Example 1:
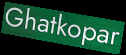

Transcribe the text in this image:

Ghatkopar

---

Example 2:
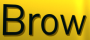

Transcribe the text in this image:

Brow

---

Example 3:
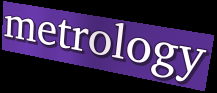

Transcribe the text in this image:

metrology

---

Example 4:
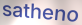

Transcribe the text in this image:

satheno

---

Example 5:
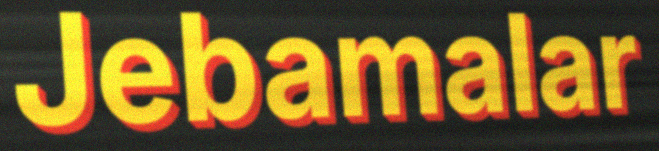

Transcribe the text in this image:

Jebamalar